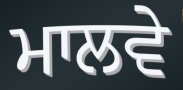
ਮਾਲਵੇ